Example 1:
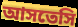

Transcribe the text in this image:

আসতেসি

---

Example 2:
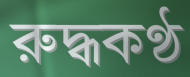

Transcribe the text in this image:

রুদ্ধকণ্ঠ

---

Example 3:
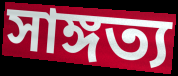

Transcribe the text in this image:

সাঙ্গত্য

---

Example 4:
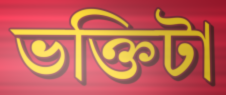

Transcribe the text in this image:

ভক্তিটা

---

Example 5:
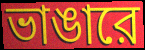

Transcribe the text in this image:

ভাঙারে